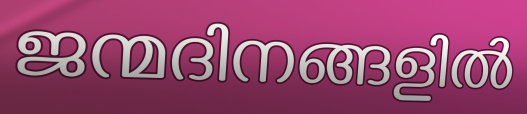
ജന്മദിനങ്ങളിൽ